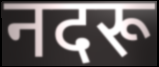
नदरू